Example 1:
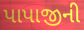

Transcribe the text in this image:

પાપાજીની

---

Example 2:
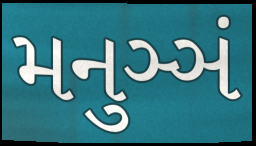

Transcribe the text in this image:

મનુઞ્ઞં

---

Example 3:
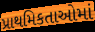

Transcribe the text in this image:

પ્રાથમિકતાઓમાં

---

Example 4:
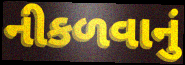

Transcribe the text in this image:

નીકળવાનું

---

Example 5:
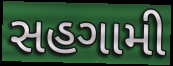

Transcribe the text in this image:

સહગામી